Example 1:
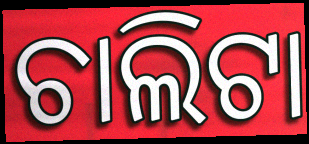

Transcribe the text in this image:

ଚାଲିଟା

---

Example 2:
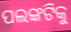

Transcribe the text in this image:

ପଲଙ୍କଟିକୁ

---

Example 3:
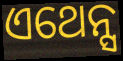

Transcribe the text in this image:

ଏଥେନ୍ସ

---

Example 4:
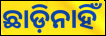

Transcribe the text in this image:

ଛାଡ଼ିନାହିଁ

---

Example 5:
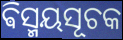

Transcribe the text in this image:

ଵିସ୍ମୟସୂଚକ